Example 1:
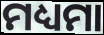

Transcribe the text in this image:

ମଧ୍ୟମା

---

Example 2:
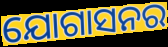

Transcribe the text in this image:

ଯୋଗାସନର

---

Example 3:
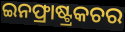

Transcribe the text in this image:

ଇନଫ୍ରାଷ୍ଟ୍ରକଚର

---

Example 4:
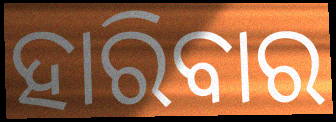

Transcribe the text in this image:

ହାରିବାର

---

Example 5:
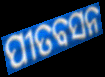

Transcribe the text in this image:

ପୀତବସନ